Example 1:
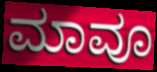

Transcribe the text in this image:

ಮಾವೂ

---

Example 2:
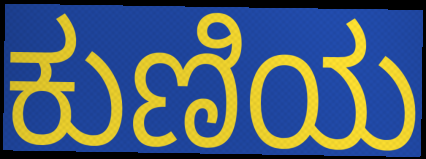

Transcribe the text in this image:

ಕುಣಿಯ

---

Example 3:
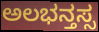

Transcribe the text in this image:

ಅಲಭನ್ತಸ್ಸ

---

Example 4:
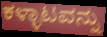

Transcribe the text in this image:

ಕಳ್ಳಾಟವನ್ನು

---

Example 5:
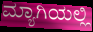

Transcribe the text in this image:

ಮ್ಯಾಗಿಯಲ್ಲಿ